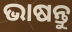
ଭାଷନ୍ତୁ